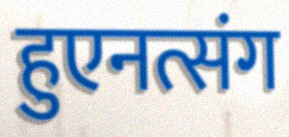
हुएनत्संग